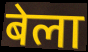
बेला